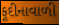
ફૂદીનાવાળી